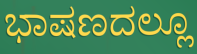
ಭಾಷಣದಲ್ಲೂ